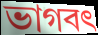
ভাগবৎ